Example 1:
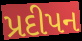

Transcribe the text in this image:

પ્રદીપન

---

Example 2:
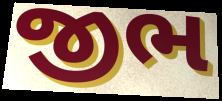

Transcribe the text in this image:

જીભ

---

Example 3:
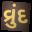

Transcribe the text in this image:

વ્રુંદ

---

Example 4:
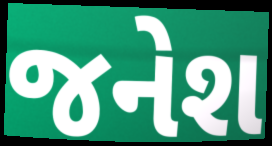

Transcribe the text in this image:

જનેશ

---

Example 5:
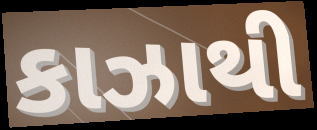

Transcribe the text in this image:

કાઝાથી